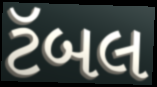
ટૅબલ